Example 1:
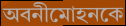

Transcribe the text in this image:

অবনীমোহনকে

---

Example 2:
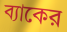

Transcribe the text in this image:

ব্যাকের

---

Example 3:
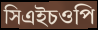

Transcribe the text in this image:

সিএইচওপি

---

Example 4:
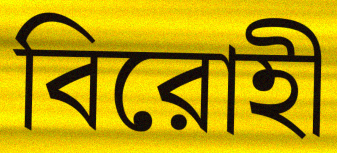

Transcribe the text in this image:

বিরোহী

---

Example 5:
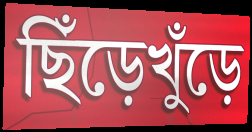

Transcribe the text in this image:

ছিঁড়েখুঁড়ে